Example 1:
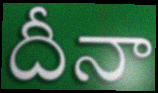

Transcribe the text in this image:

దీనా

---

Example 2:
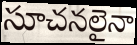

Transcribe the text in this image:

సూచనలైనా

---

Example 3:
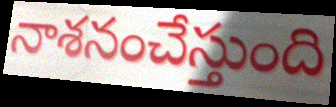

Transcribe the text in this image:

నాశనంచేస్తుంది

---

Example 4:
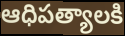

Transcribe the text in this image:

ఆధిపత్యాలకి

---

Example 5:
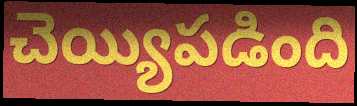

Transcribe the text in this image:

చెయ్యిపడింది